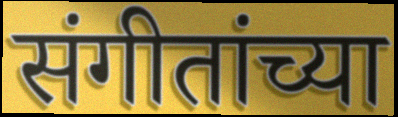
संगीतांच्या